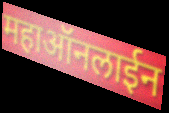
महाऑनलाईन